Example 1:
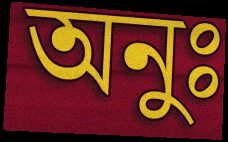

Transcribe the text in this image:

অনুঃ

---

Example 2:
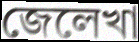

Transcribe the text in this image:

জেলেখা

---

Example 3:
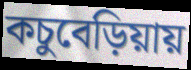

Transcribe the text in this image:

কচুবেড়িয়ায়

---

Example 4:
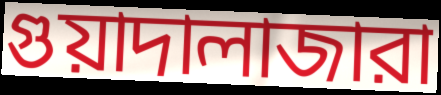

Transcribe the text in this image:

গুয়াদালাজারা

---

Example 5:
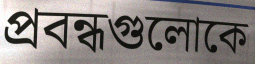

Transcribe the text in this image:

প্রবন্ধগুলোকে